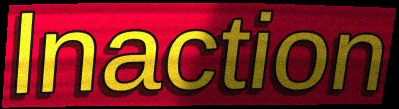
lnaction